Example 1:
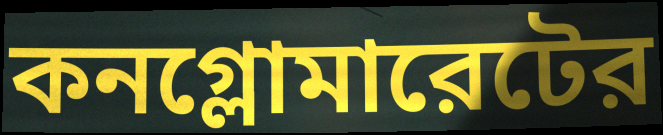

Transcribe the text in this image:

কনগ্লোমারেটের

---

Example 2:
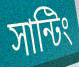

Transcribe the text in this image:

সান্টিং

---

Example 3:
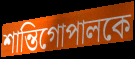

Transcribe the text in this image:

শান্তিগোপালকে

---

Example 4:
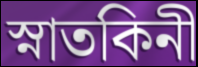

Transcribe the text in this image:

স্নাতকিনী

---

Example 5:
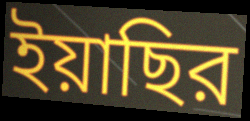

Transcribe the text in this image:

ইয়াছির